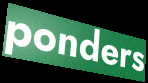
ponders